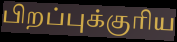
பிறப்புக்குரிய